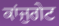
ਕਾਂਜੁਗੇਟ